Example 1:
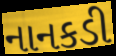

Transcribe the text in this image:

નાનકડી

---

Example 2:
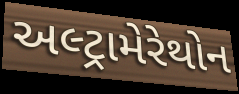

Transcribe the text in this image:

અલ્ટ્રામેરેથોન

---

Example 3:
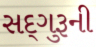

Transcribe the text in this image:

સદ્‌ગુરૂની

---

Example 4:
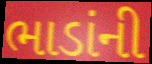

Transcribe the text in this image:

ભાડાંની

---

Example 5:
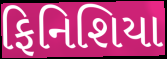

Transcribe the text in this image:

ફિનિશિયા